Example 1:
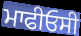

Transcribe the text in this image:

ਮਾਫੀਓਸੀ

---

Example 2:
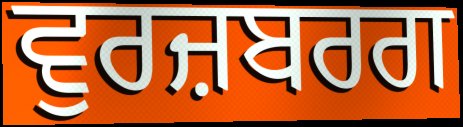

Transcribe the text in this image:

ਵੁਰਜ਼ਬਰਗ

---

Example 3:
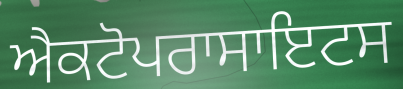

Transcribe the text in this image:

ਐਕਟੋਪਰਾਸਾਇਟਸ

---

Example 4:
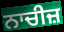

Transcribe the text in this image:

ਨਾਚੀਜ਼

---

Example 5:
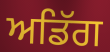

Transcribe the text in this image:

ਅਡਿੱਗ